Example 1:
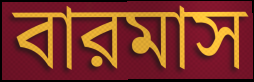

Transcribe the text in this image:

বারমাস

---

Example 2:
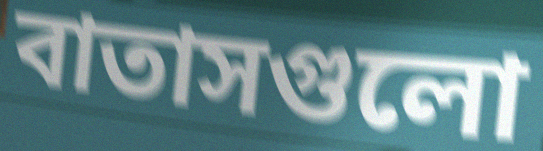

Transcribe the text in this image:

বাতাসগুলো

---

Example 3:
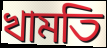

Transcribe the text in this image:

খামতি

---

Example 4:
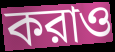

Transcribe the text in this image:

করাও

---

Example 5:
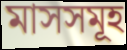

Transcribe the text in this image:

মাসসমূহ